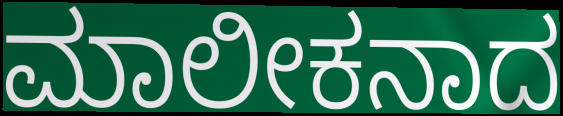
ಮಾಲೀಕನಾದ